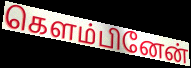
கெளம்பினேன்